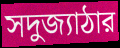
সদুজ্যাঠার